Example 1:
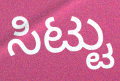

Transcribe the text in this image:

ಸಿಟ್ಟು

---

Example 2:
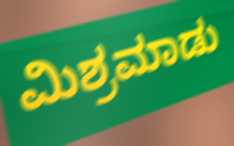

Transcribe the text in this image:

ಮಿಶ್ರಮಾಡು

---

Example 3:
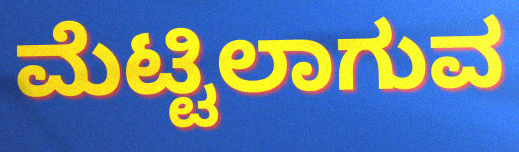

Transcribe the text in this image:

ಮೆಟ್ಟಿಲಾಗುವ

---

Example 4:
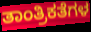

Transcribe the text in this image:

ತಾಂತ್ರಿಕತೆಗಳ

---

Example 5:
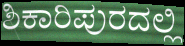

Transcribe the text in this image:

ಶಿಕಾರಿಪುರದಲ್ಲಿ